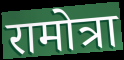
रामोत्रा